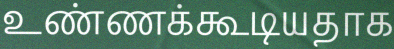
உண்ணக்கூடியதாக